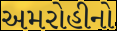
અમરોહીનો